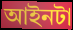
আইনটা